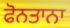
ਫੋਨਤਾਨਾ